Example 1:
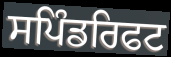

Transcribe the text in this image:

ਸਪਿੰਡਰਿਫਟ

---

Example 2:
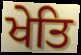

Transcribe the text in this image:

ਖੇਤਿ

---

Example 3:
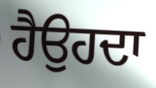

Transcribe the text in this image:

ਹੈਉਹਦਾ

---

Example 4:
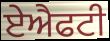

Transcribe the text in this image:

ਏਐਫਟੀ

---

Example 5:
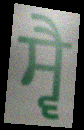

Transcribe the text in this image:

ਸ੍ਵੈ